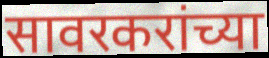
सावरकरांच्या